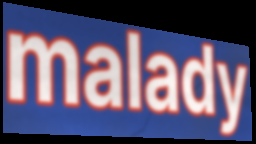
malady